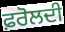
ਫ਼ਰੋਲਦੀ